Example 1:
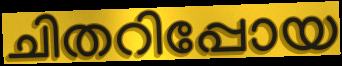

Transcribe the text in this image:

ചിതറിപ്പോയ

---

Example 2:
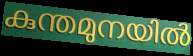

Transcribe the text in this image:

കുന്തമുനയിൽ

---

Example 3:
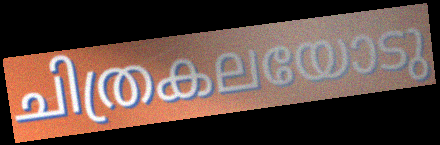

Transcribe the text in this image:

ചിത്രകലയോടു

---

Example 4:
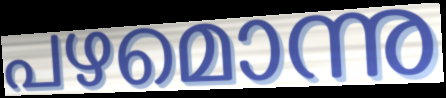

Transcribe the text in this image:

പഴമൊന്നു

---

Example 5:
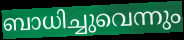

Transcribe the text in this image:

ബാധിച്ചുവെന്നും